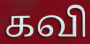
கவி